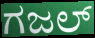
ಗಜಲ್